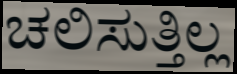
ಚಲಿಸುತ್ತಿಲ್ಲ